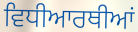
ਵਿਧੀਆਰਥੀਆਂ